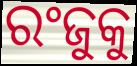
ରଂଜୁକୁ